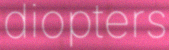
diopters